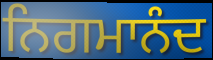
ਨਿਗਮਾਨੰਦ